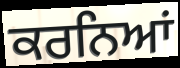
ਕਰਨਿਆਂ